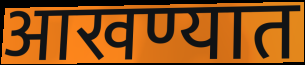
आखण्यात